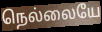
நெல்லையே